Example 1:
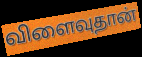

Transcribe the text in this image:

விளைவுதான்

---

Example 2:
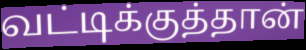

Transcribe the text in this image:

வட்டிக்குத்தான்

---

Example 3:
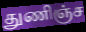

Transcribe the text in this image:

துணிஞ்ச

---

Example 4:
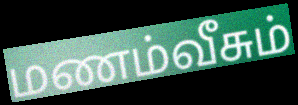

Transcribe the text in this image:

மணம்வீசும்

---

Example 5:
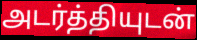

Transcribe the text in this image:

அடர்த்தியுடன்